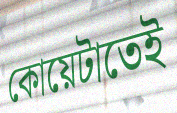
কোয়েটাতেই